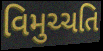
વિમુચ્ચતિ